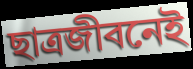
ছাত্রজীবনেই